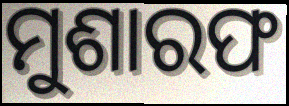
ମୁଶାରଫ